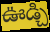
ఊడ్చి